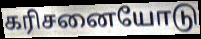
கரிசனையோடு